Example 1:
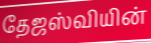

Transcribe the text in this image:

தேஜஸ்வியின்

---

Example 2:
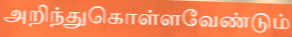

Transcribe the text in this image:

அறிந்துகொள்ளவேண்டும்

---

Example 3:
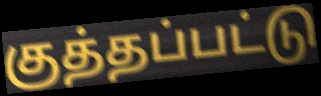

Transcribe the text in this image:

குத்தப்பட்டு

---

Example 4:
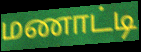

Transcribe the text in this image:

மணாட்டி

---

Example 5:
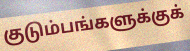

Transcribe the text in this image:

குடும்பங்களுக்குக்